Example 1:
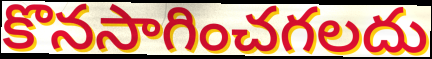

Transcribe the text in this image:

కొనసాగించగలదు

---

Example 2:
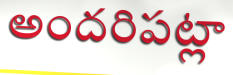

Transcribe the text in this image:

అందరిపట్లా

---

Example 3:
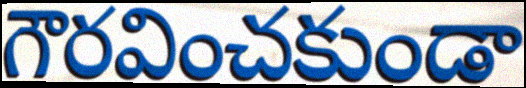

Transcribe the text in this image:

గౌరవించకుండా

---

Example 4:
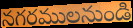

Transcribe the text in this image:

నగరములనుండి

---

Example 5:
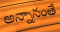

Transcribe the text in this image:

అన్నానంతే